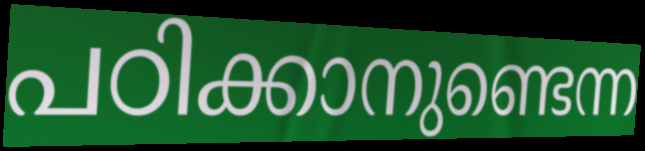
പഠിക്കാനുണ്ടെന്ന